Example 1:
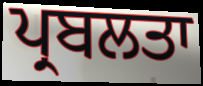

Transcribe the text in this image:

ਪ੍ਰਬਲਤਾ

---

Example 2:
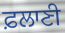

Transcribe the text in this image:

ਫ਼ਲਾਣੀ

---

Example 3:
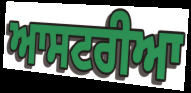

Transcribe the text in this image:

ਆਸਟਰੀਆ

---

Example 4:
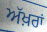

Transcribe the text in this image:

ਅੱਖ਼ਰਾਂ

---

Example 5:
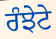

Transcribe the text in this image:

ਰੰਝੇਟੇ